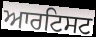
ਆਰਟਿਸਟ